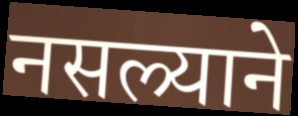
नसल्याने